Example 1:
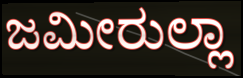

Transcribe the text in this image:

ಜಮೀರುಲ್ಲಾ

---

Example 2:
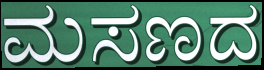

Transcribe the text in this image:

ಮಸಣದ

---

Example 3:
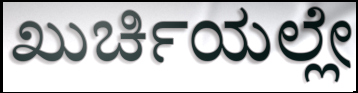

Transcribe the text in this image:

ಖುರ್ಚಿಯಲ್ಲೇ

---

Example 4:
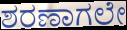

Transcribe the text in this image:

ಶರಣಾಗಲೇ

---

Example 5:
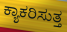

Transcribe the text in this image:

ಕ್ಯಾಕರಿಸುತ್ತ